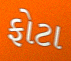
ફોટા